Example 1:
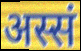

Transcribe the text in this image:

अस्सं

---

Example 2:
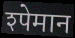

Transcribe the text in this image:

श्पेमान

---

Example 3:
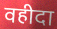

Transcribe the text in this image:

वहीदा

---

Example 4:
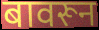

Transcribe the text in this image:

बावरून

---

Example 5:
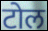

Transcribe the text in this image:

टोल